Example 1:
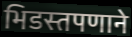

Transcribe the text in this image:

भिडस्तपणाने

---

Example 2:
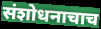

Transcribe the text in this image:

संशोधनाचाच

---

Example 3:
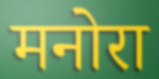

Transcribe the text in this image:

मनोरा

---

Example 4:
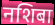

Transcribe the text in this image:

नशिबा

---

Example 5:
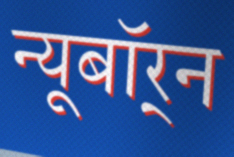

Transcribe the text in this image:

न्यूबॉर्न